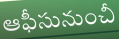
ఆఫీసునుంచీ